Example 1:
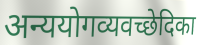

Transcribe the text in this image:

अन्ययोगव्यवच्छेदिका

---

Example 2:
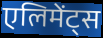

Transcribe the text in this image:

एलिमेंट्स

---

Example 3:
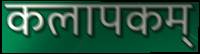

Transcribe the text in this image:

कलापकम्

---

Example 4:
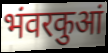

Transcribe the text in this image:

भंवरकुआं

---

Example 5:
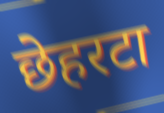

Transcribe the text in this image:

छेहरटा